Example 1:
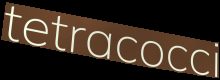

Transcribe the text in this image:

tetracocci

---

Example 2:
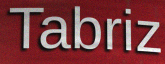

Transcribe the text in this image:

Tabriz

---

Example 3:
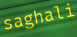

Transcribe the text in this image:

saghali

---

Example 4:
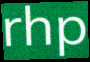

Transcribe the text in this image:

rhp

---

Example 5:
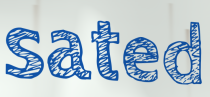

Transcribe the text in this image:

sated